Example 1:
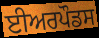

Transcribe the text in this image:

ਈਅਰਪੌਡਸ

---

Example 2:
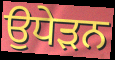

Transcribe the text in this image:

ਉਧੇੜਨ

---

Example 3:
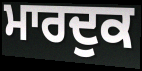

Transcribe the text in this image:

ਮਾਰਦੁਕ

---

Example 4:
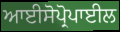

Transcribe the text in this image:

ਆਈਸੋਪ੍ਰੋਪਾਈਲ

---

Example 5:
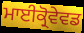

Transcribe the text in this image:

ਮਾਈਕ੍ਰੋਵੇਵਡ